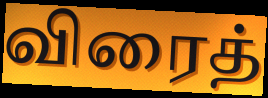
விரைத்